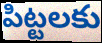
పిట్టలకు